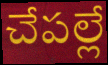
చేపల్లే